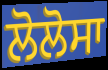
ਲੋਲੋਸਾ